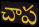
చాప